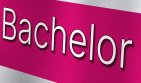
Bachelor